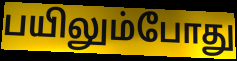
பயிலும்போது